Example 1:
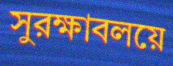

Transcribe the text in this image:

সুরক্ষাবলয়ে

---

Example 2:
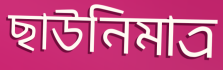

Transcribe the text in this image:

ছাউনিমাত্র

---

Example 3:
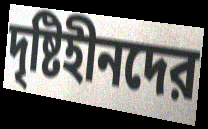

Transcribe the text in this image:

দৃষ্টিহীনদের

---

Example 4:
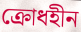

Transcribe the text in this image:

ক্রোধহীন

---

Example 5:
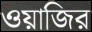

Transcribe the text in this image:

ওয়াজির